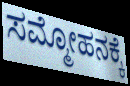
ಸಮ್ಮೋಹನಕ್ಕೆ